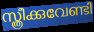
സ്ത്രീക്കുവേണ്ടി